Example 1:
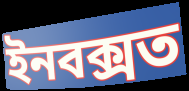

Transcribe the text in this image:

ইনবক্সত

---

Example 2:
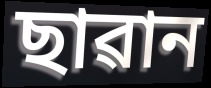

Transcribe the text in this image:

ছাৱান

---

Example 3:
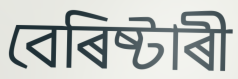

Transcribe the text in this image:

বেৰিষ্টাৰী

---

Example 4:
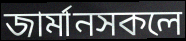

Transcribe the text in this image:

জাৰ্মানসকলে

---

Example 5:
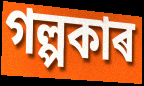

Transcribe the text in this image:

গল্পকাৰ